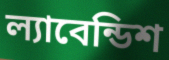
ল্যাবেন্ডিশ